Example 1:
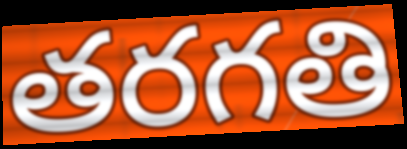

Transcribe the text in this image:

తరగతి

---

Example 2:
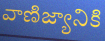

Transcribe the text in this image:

వాణిజ్యానికి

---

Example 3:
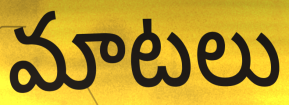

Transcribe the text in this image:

మాటలు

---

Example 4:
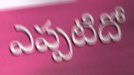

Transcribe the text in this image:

ఎప్పటిదో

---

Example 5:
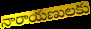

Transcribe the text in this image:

నారాయణులకు